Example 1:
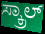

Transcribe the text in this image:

ಸ್ಕ್ರಾಲ್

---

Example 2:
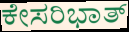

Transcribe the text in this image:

ಕೇಸರಿಭಾತ್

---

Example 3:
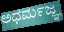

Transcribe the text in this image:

ಅಧರ್ಮಜ್ಞ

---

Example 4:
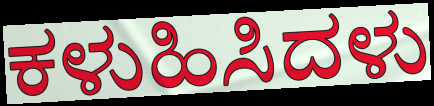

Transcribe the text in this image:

ಕಳುಹಿಸಿದಳು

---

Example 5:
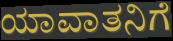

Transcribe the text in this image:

ಯಾವಾತನಿಗೆ